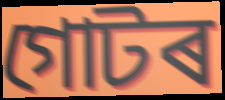
গোটৰ